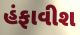
હંફાવીશ